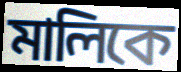
মালিকে